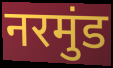
नरमुंड